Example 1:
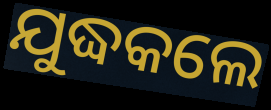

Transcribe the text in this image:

ଯୁଦ୍ଧକଲେ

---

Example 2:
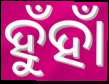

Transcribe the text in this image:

ହୁଁହାଁ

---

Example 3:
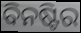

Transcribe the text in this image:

ବିନଷ୍ଟିର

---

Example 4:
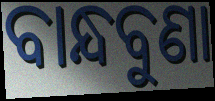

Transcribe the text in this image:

ବାନ୍ଧବୁଣା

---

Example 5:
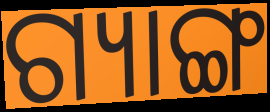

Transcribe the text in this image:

ଗ୍ୟାଙ୍ଗ